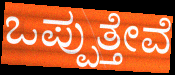
ಒಪ್ಪುತ್ತೇವೆ